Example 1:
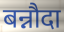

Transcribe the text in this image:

बन्नौदा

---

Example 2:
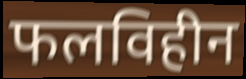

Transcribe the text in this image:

फलविहीन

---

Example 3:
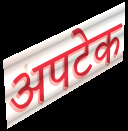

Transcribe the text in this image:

अपटेक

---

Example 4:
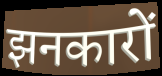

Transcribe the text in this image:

झनकारों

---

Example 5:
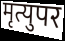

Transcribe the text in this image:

मृत्युपर